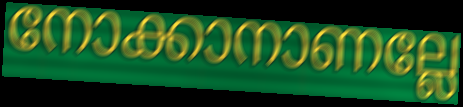
നോക്കാനാണല്ലേ